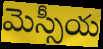
మెస్సీయ